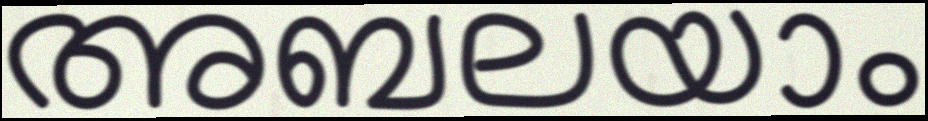
അബലയാം